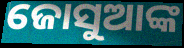
ଜୋସୁଆଙ୍କ